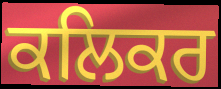
ਕਲਿਕਰ